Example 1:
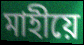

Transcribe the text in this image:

মাহীয়ে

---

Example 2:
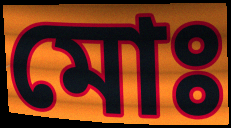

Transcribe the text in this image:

মোঃ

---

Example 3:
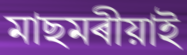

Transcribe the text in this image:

মাছমৰীয়াই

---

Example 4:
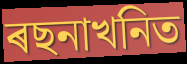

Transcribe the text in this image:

ৰছনাখনিত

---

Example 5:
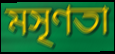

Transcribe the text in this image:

মসৃণতা